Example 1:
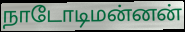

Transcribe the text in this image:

நாடோடிமன்னன்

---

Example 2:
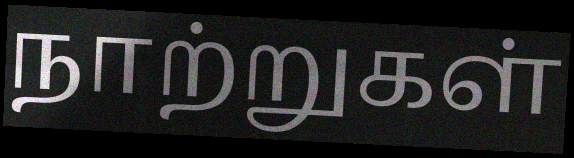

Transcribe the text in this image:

நாற்றுகள்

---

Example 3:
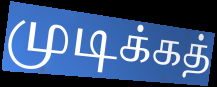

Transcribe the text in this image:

முடிக்கத்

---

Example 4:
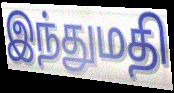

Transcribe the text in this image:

இந்துமதி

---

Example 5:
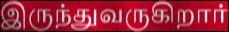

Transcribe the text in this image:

இருந்துவருகிறார்